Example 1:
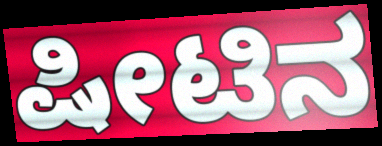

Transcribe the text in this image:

ಷೀಟಿನ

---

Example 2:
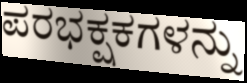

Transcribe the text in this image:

ಪರಭಕ್ಷಕಗಳನ್ನು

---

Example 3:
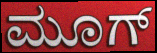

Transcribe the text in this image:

ಮೂಗ್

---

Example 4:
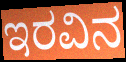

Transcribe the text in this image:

ಇರವಿನ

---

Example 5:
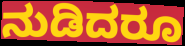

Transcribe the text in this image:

ನುಡಿದರೂ